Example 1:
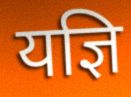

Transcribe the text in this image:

यज्ञि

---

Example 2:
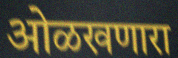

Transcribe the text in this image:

ओळखणारा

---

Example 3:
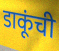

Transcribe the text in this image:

डाकूंची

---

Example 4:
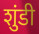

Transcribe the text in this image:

शुंडी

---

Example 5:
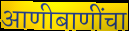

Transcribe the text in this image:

आणीबाणींचा